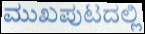
ಮುಖಪುಟದಲ್ಲಿ